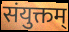
संयुक्तम्